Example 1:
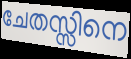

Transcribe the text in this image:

ചേതസ്സിനെ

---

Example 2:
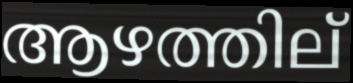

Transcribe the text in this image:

ആഴത്തില്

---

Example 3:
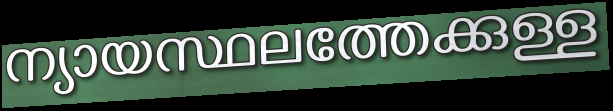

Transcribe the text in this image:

ന്യായസ്ഥലത്തേക്കുള്ള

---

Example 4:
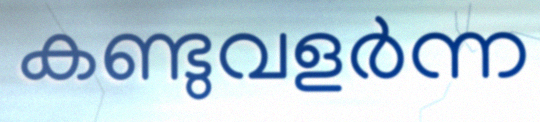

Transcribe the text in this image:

കണ്ടുവളർന്ന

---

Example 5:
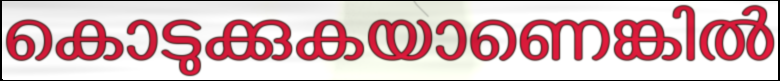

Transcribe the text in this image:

കൊടുക്കുകയാണെങ്കിൽ